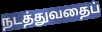
நடத்துவதைப்